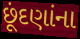
છૂંદણાંના